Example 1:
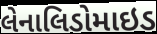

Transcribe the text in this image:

લેનાલિડોમાઇડ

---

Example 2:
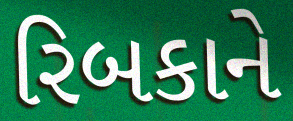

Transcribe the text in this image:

રિબકાને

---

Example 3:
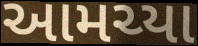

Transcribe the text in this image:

આમચ્યા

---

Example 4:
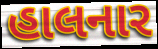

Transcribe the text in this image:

હાલનાર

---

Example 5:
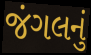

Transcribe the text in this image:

જંગલનું